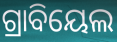
ଗ୍ରାବିୟେଲ